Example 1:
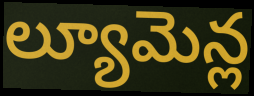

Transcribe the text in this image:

ల్యూమెన్ల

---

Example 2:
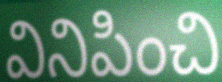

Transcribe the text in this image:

వినిపించి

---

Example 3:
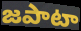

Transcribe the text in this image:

జపాటా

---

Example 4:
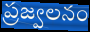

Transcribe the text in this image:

ప్రజ్వలనం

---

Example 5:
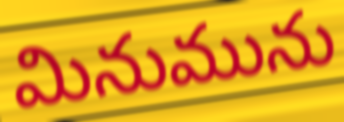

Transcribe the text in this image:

మినుమును